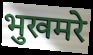
भुखमरे